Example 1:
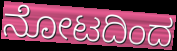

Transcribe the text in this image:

ನೋಟದಿಂದ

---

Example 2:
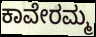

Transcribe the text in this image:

ಕಾವೇರಮ್ಮ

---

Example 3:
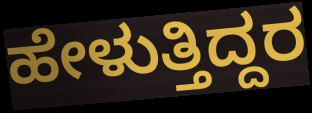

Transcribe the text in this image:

ಹೇಳುತ್ತಿದ್ದರ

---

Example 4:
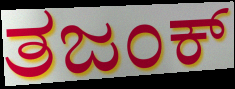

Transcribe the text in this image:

ತಜಂಕ್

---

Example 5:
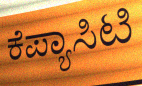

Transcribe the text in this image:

ಕೆಪ್ಯಾಸಿಟಿ